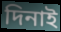
দিনাই